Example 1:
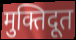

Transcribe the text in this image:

मुक्तिदूत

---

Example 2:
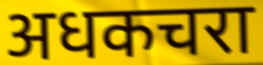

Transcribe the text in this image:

अधकचरा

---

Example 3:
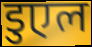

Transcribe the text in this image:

डुएल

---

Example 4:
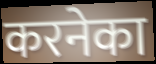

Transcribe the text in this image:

करनेका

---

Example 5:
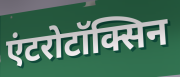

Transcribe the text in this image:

एंटरोटॉक्सिन